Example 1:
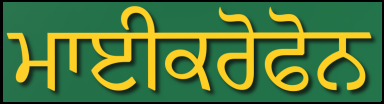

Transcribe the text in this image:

ਮਾਈਕਰੋਫੋਨ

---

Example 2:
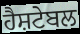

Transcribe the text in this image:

ਹੈਸ਼ਟੇਬਲ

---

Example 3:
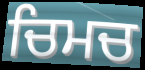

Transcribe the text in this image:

ਚਿਮਚ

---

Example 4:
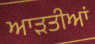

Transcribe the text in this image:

ਆੜਤੀਆਂ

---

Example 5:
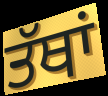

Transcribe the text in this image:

ਤੱਥਾਂ